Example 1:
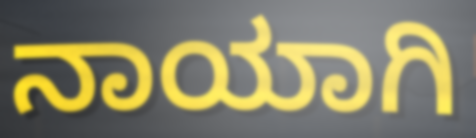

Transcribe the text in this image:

ನಾಯಾಗಿ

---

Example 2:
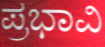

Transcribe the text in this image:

ಪ್ರಭಾವಿ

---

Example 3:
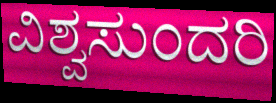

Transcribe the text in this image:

ವಿಶ್ವಸುಂದರಿ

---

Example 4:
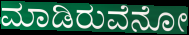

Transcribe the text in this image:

ಮಾಡಿರುವೆನೋ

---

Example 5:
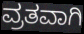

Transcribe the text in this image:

ವ್ರತವಾಗಿ